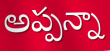
అప్పన్నా